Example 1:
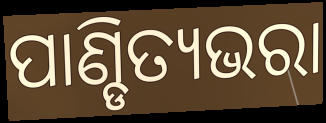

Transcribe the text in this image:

ପାଣ୍ଡିତ୍ୟଭରା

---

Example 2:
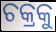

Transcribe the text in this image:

ଚକ୍ରକୁ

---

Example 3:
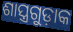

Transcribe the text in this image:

ଶାସ୍ତ୍ରଗୁଡ଼ାକ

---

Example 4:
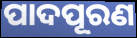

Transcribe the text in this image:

ପାଦପୂରଣ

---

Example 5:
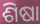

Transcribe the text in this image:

ଶିଷା